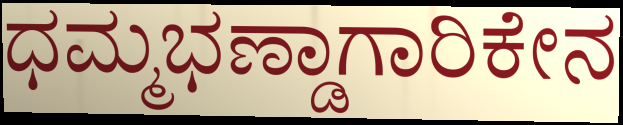
ಧಮ್ಮಭಣ್ಡಾಗಾರಿಕೇನ